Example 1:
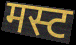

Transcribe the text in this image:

मस्ट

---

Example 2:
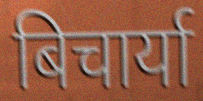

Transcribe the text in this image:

बिचार्या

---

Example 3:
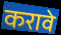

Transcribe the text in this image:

करावे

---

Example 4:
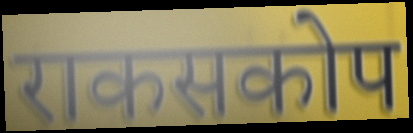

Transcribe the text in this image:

राकसकोप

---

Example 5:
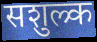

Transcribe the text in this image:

सशुल्क